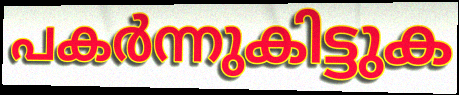
പകർന്നുകിട്ടുക